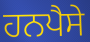
ਹਨਪੈਸੇ